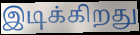
இடிக்கிறது